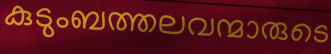
കുടുംബത്തലവന്മാരുടെ